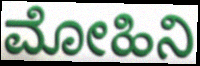
ಮೋಹಿನಿ